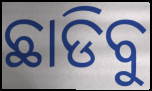
ଛାଡିବୁ